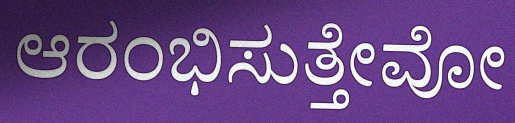
ಆರಂಭಿಸುತ್ತೇವೋ